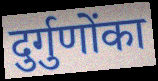
दुर्गुणोंका